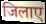
जिलाए